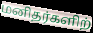
மனிதர்களிற்